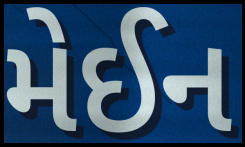
મેઈન